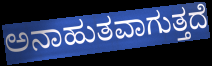
ಅನಾಹುತವಾಗುತ್ತದೆ